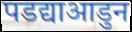
पडद्याआडुन